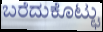
ಬರೆದುಕೊಟ್ಟು